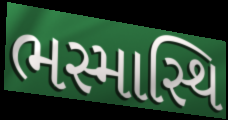
ભસ્માસ્થિ